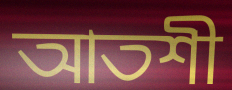
আতশী